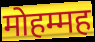
मोहम्मह